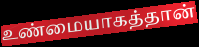
உண்மையாகத்தான்